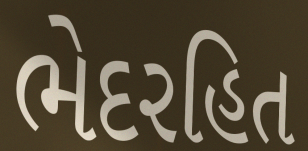
ભેદરહિત